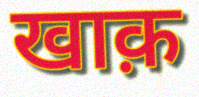
खाक़